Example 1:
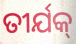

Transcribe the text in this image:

ତୀର୍ଯକ୍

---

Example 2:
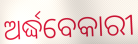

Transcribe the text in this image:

ଅର୍ଦ୍ଧବେକାରୀ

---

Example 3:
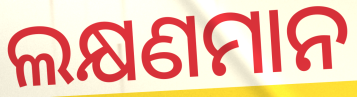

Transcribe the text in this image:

ଲକ୍ଷଣମାନ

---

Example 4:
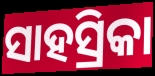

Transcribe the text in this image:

ସାହସ୍ରିକା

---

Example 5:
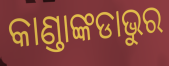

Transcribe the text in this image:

କାଣ୍ଡାଙ୍କଡାଭୁର